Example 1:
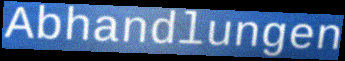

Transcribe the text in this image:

Abhandlungen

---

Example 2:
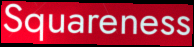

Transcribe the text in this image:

Squareness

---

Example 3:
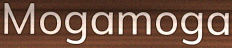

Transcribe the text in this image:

Mogamoga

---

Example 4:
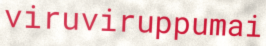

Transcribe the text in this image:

viruviruppumai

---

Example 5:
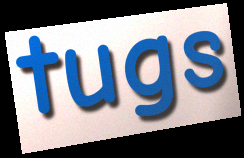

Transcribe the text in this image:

tugs